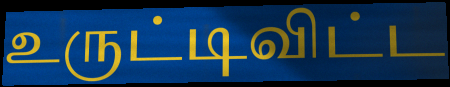
உருட்டிவிட்ட